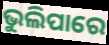
ଭୁଲିପାରେ